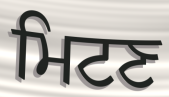
ਮਿਟਣ